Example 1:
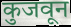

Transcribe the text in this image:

कुजवून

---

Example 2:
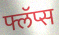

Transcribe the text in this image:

फ्लॅप्स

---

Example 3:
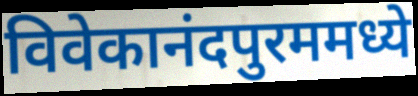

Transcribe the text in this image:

विवेकानंदपुरममध्ये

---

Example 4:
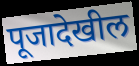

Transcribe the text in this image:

पूजादेखील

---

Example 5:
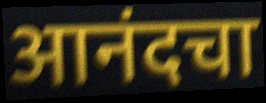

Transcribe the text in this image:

आनंदचा